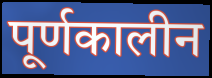
पूर्णकालीन